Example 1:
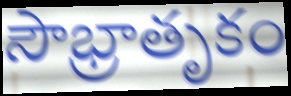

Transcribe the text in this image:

సౌభ్రాతృకం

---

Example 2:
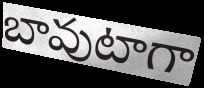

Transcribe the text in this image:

బావుటాగా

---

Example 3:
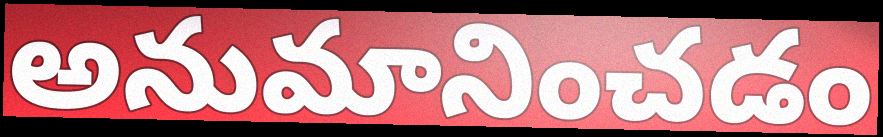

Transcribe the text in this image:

అనుమానించడం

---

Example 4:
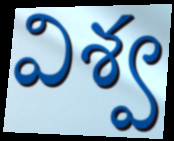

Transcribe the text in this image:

విశ్వ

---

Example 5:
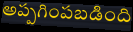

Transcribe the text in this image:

అప్పగింపబడింది